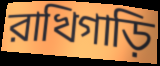
রাখিগাড়ি